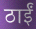
ठाईं